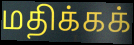
மதிக்கக்